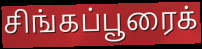
சிங்கப்பூரைக்